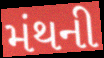
મંથની